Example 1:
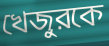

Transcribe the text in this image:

খেজুরকে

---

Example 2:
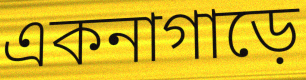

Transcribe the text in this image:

একনাগাড়ে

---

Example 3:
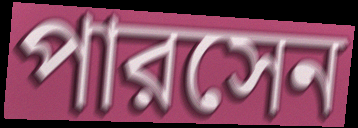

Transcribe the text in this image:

পারসেন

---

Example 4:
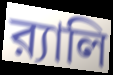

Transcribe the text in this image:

র‍্যালি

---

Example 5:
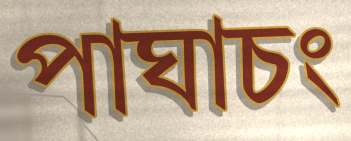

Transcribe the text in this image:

পাঘাচং